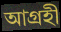
আগ্ৰহী